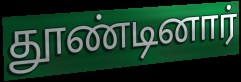
தூண்டினார்